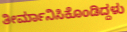
ತೀರ್ಮಾನಿಸಿಕೊಂಡಿದ್ದಳು